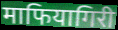
माफियागिरी